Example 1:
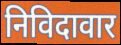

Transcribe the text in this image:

निविदावार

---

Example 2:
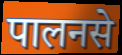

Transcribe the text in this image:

पालनसे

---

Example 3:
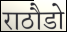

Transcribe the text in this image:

राठौडो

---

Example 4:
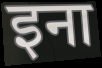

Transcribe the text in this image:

इना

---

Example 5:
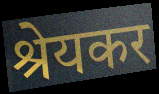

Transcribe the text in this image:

श्रेयकर